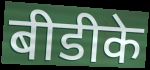
बीडीके